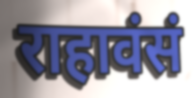
राहावंसं